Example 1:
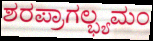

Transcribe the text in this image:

ಶರಪ್ರಾಗಲ್ಭ್ಯಮಂ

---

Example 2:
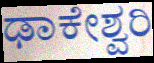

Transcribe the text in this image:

ಢಾಕೇಶ್ವರಿ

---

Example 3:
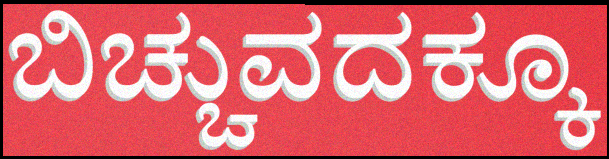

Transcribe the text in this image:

ಬಿಚ್ಚುವದಕ್ಕೂ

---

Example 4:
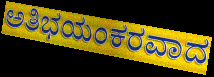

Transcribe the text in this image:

ಅತಿಭಯಂಕರವಾದ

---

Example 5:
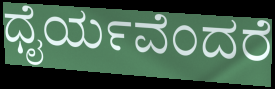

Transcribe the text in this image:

ಧೈರ್ಯವೆಂದರೆ